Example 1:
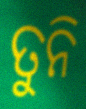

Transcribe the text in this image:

ତୁନି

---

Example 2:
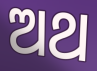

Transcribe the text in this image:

ଅଥ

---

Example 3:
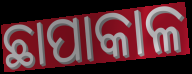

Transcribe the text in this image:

ଛାପାକାଳ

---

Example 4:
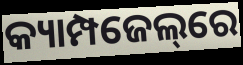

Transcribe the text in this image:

କ୍ୟାମ୍ପଜେଲ୍‌ରେ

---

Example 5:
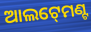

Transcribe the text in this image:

ଆଲଟ୍‍ମେଣ୍ଟ